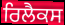
ਰਿਲੈਕਸ